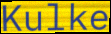
Kulke